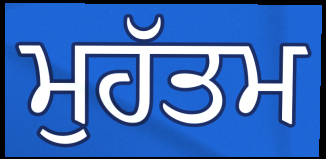
ਮੁਹੱਤਮ